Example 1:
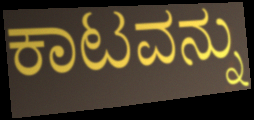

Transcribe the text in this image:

ಕಾಟವನ್ನು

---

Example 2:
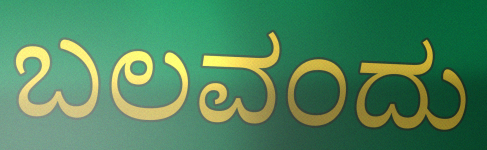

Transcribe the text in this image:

ಬಲವಂದು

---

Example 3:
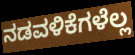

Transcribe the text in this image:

ನಡವಳಿಕೆಗಳೆಲ್ಲ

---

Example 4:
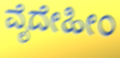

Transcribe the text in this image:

ವೈದೇಹೀಂ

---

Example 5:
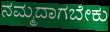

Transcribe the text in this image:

ನಮ್ಮದಾಗಬೇಕು